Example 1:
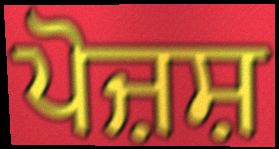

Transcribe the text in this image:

ਪੋਜ਼ਸ਼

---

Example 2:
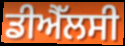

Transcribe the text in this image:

ਡੀਐੱਲਸੀ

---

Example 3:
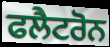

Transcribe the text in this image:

ਫਲੈਟਰੋਨ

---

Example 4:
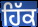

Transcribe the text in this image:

ਹਿੱਕ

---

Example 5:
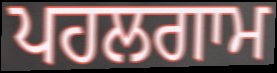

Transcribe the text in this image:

ਪਹਲਗਾਮ